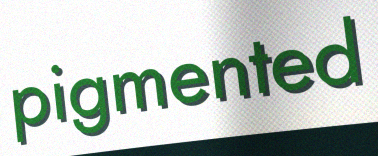
pigmented